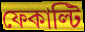
ফেকাল্টি